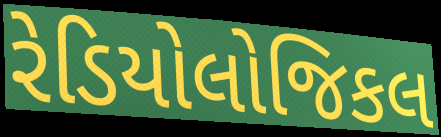
રેડિયોલોજિકલ